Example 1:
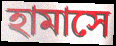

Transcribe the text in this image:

হামাসে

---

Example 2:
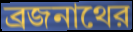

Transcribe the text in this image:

ব্রজনাথের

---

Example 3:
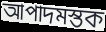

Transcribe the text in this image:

আপাদমস্তক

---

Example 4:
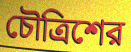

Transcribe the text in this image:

চৌত্রিশের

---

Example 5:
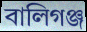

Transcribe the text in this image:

বালিগঞ্জ